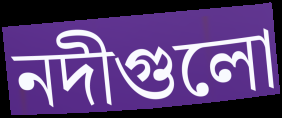
নদীগুলো